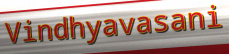
Vindhyavasani